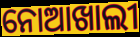
ନୋଆଖାଲୀ